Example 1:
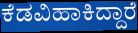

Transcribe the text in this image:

ಕೆಡವಿಹಾಕಿದ್ದಾರೆ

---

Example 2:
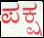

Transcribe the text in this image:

ಪಕ್ಷ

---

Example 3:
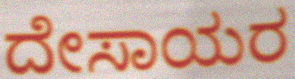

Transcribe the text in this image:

ದೇಸಾಯರ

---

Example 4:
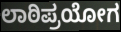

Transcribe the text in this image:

ಲಾಠಿಪ್ರಯೋಗ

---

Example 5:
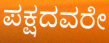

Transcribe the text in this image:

ಪಕ್ಷದವರೇ